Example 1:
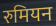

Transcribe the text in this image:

रुमियन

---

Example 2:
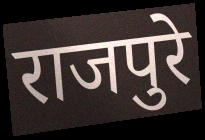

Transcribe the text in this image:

राजपुरे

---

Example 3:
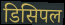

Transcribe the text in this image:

डिसिपल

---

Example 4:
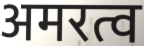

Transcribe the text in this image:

अमरत्व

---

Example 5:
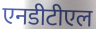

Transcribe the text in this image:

एनडीटीएल